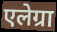
एलेग्रा